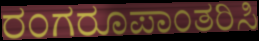
ರಂಗರೂಪಾಂತರಿಸಿ